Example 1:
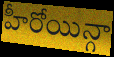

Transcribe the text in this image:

హీరోయిన్గా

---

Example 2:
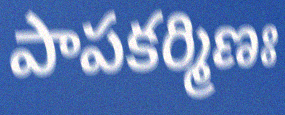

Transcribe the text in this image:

పాపకర్మిణః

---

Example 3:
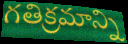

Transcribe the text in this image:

గతిక్రమాన్ని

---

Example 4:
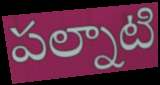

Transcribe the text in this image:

పల్నాటి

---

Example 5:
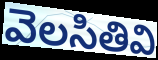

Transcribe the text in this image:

వెలసితివి